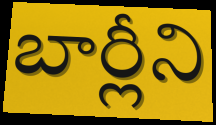
బార్లీని